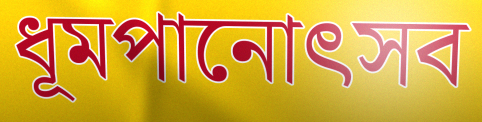
ধূমপানোৎসব